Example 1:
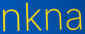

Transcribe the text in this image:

nkna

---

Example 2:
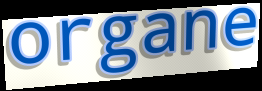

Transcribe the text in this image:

organe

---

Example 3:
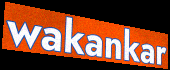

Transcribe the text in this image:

wakankar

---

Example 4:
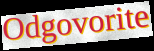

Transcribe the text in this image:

Odgovorite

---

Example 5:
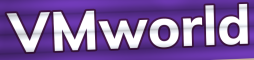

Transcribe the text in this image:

VMworld